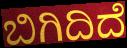
ಬಿಗಿದಿದೆ